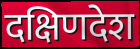
दक्षिणदेश